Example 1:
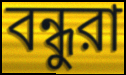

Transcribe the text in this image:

বন্ধুরা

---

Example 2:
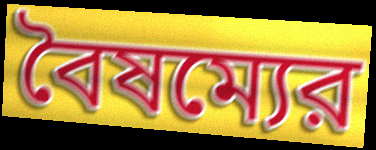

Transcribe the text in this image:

বৈষম্যের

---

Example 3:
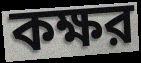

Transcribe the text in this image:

কক্ষর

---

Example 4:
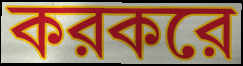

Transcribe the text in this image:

করকরে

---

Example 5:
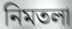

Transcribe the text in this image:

নিমতলা